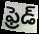
ఫ్రెడ్